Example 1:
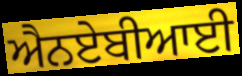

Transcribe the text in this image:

ਐਨਏਬੀਆਈ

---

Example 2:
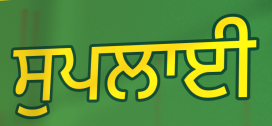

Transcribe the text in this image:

ਸੁਪਲਾਈ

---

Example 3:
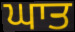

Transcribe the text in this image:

ਘਾਤ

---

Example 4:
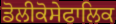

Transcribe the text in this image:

ਡੋਲੀਕੋਸੇਫਾਲਿਕ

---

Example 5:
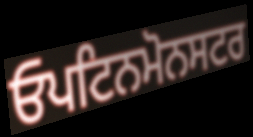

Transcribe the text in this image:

ਓਪਟਿਨਮੋਨਸਟਰ